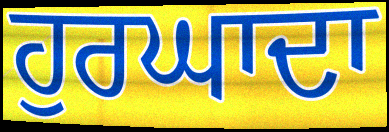
ਹੁਰਘਾਦਾ